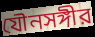
যৌনসঙ্গীর